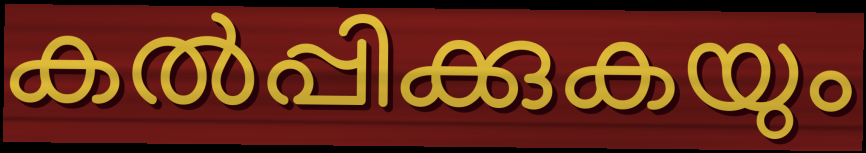
കൽപ്പിക്കുകയും